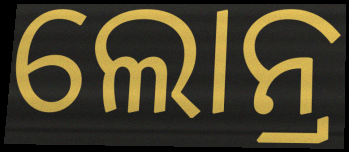
ଲୋନ୍ର